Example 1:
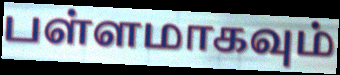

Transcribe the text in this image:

பள்ளமாகவும்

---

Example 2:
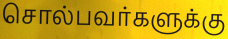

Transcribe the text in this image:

சொல்பவர்களுக்கு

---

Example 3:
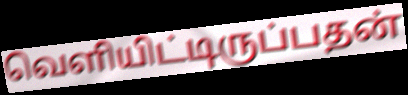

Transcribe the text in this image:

வெளியிட்டிருப்பதன்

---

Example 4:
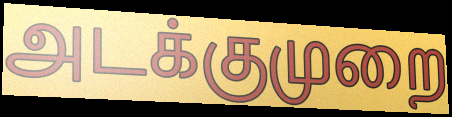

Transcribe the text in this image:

அடக்குமுறை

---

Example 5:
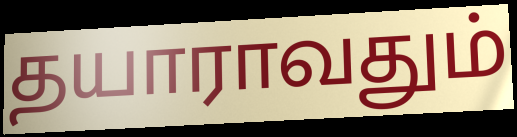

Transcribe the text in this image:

தயாராவதும்